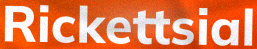
Rickettsial